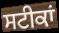
ਸਟੀਕਾਂ